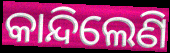
କାନ୍ଦିଲେଣି